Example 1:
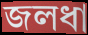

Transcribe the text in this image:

জলধা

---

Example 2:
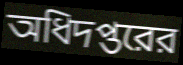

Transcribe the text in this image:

অধিদপ্তরের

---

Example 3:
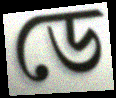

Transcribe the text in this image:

ডে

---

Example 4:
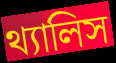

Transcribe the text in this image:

থ্যালিস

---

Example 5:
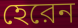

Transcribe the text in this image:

হেরেন